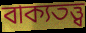
বাক্যতত্ত্ব